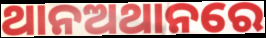
ଥାନଅଥାନରେ